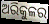
ଅରିକୁଳର